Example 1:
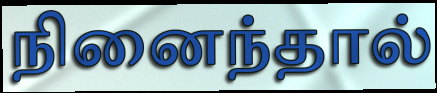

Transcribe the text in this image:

நினைந்தால்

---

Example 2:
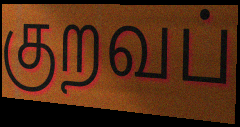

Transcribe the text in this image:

குறவப்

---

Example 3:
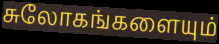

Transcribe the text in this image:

சுலோகங்களையும்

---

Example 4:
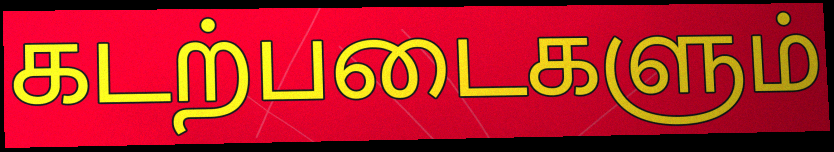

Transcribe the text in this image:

கடற்படைகளும்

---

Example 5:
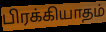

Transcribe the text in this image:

பிரக்கியாதம்